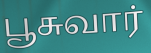
பூசுவார்